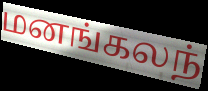
மனங்கலந்